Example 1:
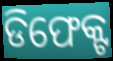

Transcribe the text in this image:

ଡିଫେକ୍ଟ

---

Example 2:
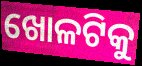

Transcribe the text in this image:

ଖୋଳଟିକୁ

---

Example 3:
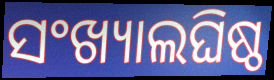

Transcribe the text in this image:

ସଂଖ୍ୟାଲଘିଷ୍ଠ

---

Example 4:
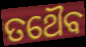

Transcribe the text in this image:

ତଥୈବ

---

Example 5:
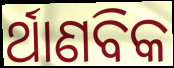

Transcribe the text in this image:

ର୍ଥାଣବିକ